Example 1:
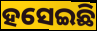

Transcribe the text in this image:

ହସେଇଛି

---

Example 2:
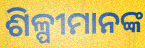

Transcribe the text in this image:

ଶିଳ୍ପୀମାନଙ୍କ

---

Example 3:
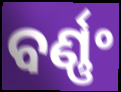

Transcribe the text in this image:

ବର୍ଣ୍ଣଂ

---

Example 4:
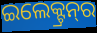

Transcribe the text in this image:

ଇଲେକ୍ଟ୍ରନ୍‌ର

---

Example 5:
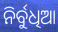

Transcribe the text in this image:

ନିର୍ବୁଧିଆ